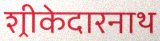
श्रीकेदारनाथ